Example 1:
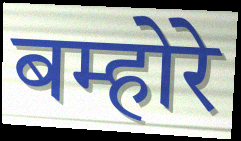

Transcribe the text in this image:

बम्होरे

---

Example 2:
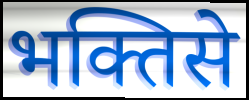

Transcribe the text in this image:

भक्तिसे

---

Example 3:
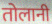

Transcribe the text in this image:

तोलानी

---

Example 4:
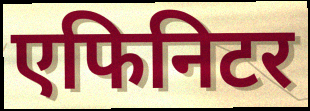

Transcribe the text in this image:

एफिनिटर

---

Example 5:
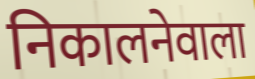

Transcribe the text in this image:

निकालनेवाला